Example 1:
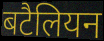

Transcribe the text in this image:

बटैलियन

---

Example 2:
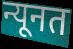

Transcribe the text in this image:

न्यूनत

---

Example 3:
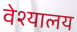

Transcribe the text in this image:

वेश्यालय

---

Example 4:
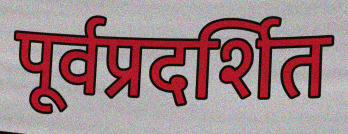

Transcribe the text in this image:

पूर्वप्रदर्शित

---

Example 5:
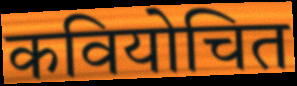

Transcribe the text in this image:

कवियोचित